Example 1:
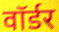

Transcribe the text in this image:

वॉर्डर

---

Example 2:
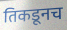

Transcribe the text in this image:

तिकडूनच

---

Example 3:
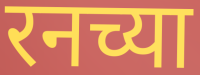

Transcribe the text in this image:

रनच्या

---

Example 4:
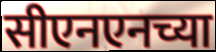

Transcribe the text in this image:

सीएनएनच्या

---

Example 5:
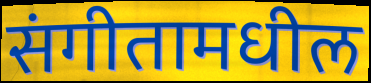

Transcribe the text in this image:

संगीतामधील